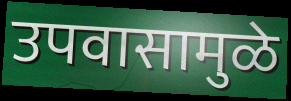
उपवासामुळे